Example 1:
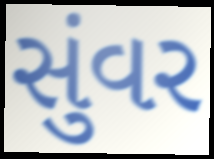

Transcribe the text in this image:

સુંવર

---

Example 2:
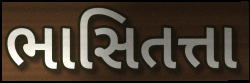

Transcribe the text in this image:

ભાસિતત્તા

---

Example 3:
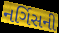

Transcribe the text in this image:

નર્ગિસની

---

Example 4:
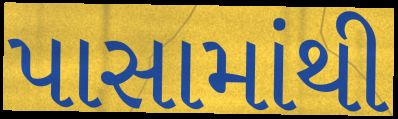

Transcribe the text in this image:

પાસામાંથી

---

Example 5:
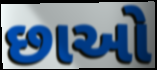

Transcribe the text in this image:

છાઓ